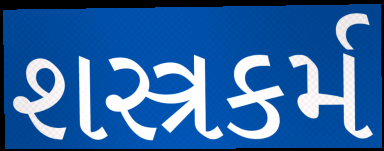
શસ્ત્રકર્મ